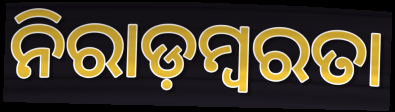
ନିରାଡ଼ମ୍ବରତା